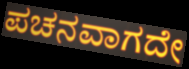
ಪಚನವಾಗದೇ